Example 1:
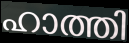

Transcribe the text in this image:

ഹാത്തി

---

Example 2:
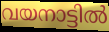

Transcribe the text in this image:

വയനാട്ടിൽ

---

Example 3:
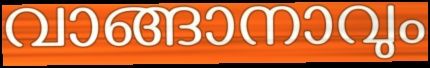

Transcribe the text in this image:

വാങ്ങാനാവും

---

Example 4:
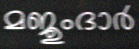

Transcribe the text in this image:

മജുംദാർ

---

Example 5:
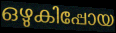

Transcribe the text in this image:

ഒഴുകിപ്പോയ